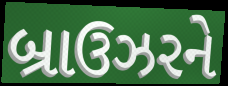
બ્રાઉઝરને